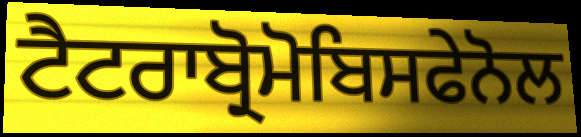
ਟੈਟਰਾਬ੍ਰੋਮੋਬਿਸਫੇਨੋਲ